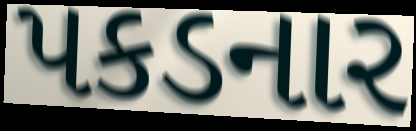
પકડનાર